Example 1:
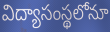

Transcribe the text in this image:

విద్యాసంస్థలోనూ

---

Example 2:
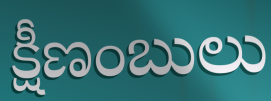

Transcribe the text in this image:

క్షీణంబులు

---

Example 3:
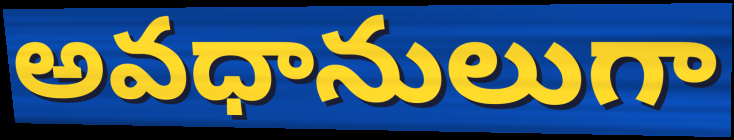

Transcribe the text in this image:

అవధానులుగా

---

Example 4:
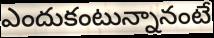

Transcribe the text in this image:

ఎందుకంటున్నానంటే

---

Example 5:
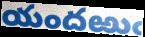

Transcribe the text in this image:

యందఱుఁ